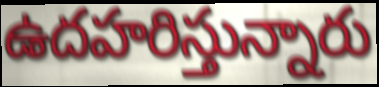
ఉదహరిస్తున్నారు